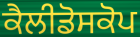
ਕੈਲੀਡੋਸਕੋਪ